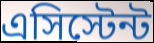
এসিস্টেন্ট